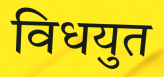
विधयुत